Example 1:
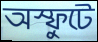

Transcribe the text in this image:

অস্ফুটে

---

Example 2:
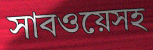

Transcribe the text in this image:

সাবওয়েসহ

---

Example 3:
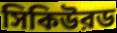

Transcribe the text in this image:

সিকিউরড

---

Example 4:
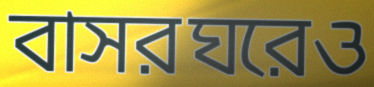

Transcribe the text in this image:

বাসরঘরেও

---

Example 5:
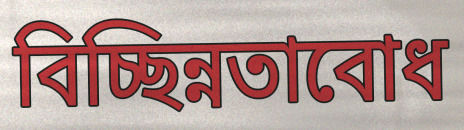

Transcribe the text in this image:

বিচ্ছিন্নতাবোধ